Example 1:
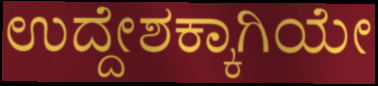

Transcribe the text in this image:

ಉದ್ದೇಶಕ್ಕಾಗಿಯೇ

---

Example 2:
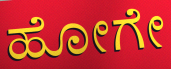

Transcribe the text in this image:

ಹೋಗೇ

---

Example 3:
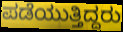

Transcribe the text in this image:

ಪಡೆಯುತ್ತಿದ್ದರು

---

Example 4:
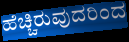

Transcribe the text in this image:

ಹೆಚ್ಚಿರುವುದರಿಂದ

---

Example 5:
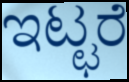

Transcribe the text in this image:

ಇಟ್ಟರೆ